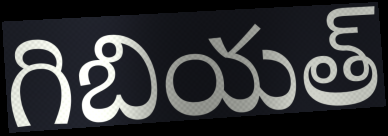
గిబియత్